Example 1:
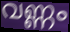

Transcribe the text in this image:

വണ്ണം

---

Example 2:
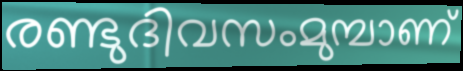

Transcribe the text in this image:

രണ്ടുദിവസംമുമ്പാണ്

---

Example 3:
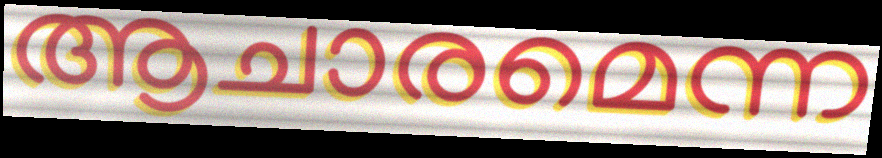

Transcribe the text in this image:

ആചാരമെന്ന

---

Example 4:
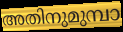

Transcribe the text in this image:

അതിനുമുമ്പാ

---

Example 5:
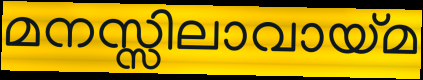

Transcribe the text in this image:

മനസ്സിലാവായ്മ